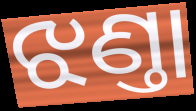
ଝଣ୍ତା